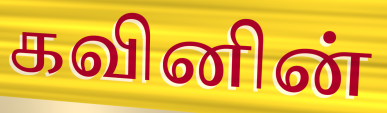
கவினின்